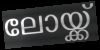
ലോയ്ക്ക്